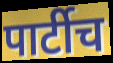
पार्टीच